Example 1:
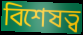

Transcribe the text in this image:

বিশেষত্ব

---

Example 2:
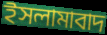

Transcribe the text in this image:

ইসলামাবাদ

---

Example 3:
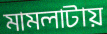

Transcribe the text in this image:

মামলাটায়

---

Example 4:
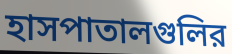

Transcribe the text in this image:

হাসপাতালগুলির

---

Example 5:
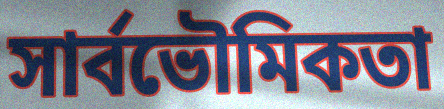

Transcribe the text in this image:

সার্বভৌমিকতা